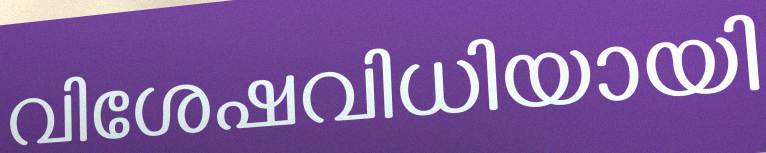
വിശേഷവിധിയായി